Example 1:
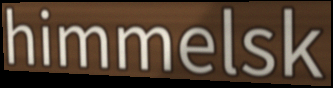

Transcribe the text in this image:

himmelsk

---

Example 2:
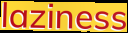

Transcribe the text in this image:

laziness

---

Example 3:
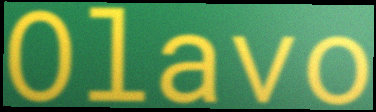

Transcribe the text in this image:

Olavo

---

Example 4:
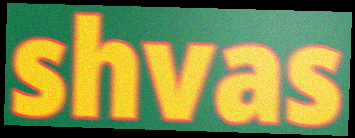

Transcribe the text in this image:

shvas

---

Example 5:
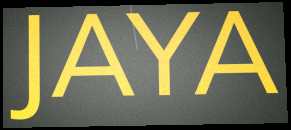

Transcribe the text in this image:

JAYA